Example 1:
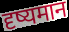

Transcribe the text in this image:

दृष्यमान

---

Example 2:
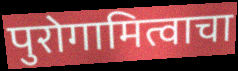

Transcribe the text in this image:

पुरोगामित्वाचा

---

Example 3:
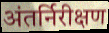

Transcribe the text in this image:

अंतर्निरीक्षण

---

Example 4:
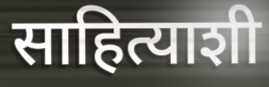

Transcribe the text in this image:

साहित्याशी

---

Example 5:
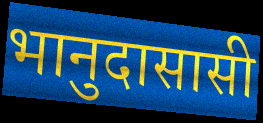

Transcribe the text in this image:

भानुदासासी